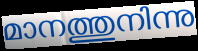
മാനത്തുനിന്നു